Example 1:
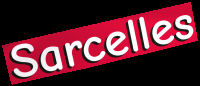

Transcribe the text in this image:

Sarcelles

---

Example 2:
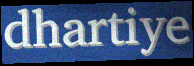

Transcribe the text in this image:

dhartiye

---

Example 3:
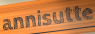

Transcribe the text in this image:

annisutte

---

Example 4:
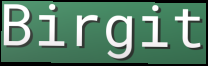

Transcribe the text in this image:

Birgit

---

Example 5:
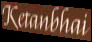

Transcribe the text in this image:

Ketanbhai